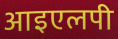
आइएलपी